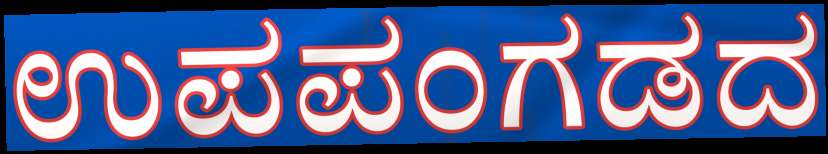
ಉಪಪಂಗಡದ